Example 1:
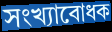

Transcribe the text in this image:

সংখ্যাবোধক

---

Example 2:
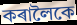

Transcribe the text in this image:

কৰালৈকে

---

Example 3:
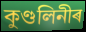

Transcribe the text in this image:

কুণ্ডলিনীৰ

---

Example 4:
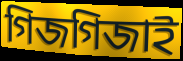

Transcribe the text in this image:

গিজগিজাই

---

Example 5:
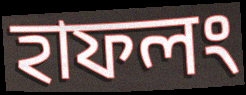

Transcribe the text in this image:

হাফলং